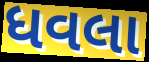
ધવલા